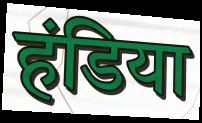
हंडिया